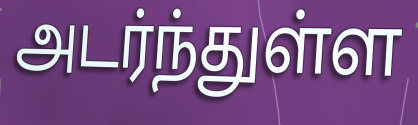
அடர்ந்துள்ள